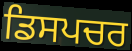
ਡਿਸਪਚਰ